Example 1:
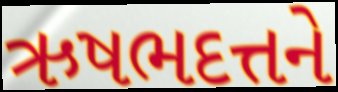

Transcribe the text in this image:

ઋષભદત્તને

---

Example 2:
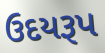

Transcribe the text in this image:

ઉદયરૂપ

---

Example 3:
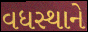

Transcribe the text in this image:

વધસ્થાને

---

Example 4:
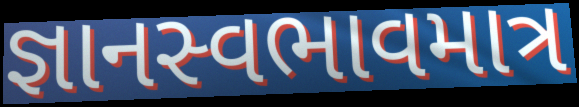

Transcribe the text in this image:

જ્ઞાનસ્વભાવમાત્ર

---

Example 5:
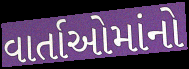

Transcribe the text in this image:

વાર્તાઓમાંનો